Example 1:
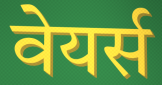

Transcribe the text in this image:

वेयर्स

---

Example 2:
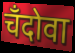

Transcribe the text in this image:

चँदोवा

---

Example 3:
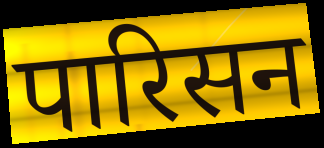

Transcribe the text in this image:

पारिसन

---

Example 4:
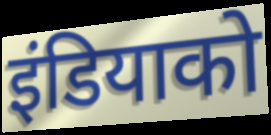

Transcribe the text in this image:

इंडियाको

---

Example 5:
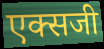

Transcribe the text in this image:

एक्सजी